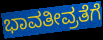
ಭಾವತೀವ್ರತೆಗೆ